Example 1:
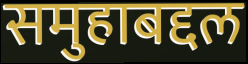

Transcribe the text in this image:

समुहाबद्दल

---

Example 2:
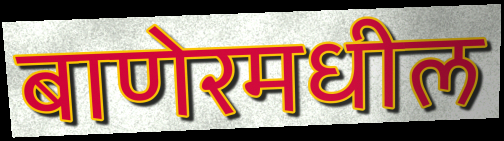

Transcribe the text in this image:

बाणेरमधील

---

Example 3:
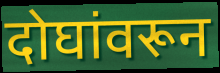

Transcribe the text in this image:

दोघांवरून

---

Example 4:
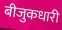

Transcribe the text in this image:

बीजुकधारी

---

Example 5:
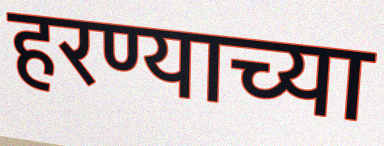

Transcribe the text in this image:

हरण्याच्या